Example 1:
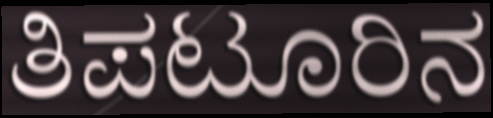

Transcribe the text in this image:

ತಿಪಟೂರಿನ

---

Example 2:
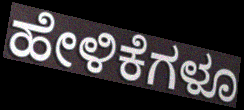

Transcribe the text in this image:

ಹೇಳಿಕೆಗಳೂ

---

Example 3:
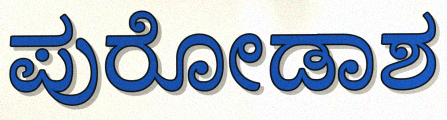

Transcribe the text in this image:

ಪುರೋಡಾಶ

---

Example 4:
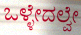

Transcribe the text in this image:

ಒಳ್ಳೇದಲ್ವೇ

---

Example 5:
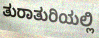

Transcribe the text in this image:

ತುರಾತುರಿಯಲ್ಲಿ